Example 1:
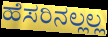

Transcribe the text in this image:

ಹೆಸರಿನಲ್ಲಲ್ಲ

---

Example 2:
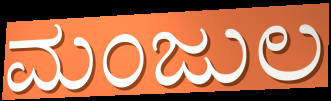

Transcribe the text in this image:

ಮಂಜುಲ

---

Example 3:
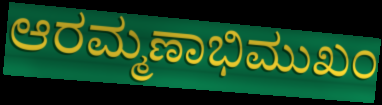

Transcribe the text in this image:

ಆರಮ್ಮಣಾಭಿಮುಖಂ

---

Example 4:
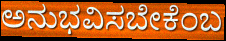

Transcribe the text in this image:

ಅನುಭವಿಸಬೇಕೆಂಬ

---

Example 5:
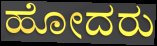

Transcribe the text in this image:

ಹೋದರು